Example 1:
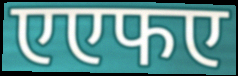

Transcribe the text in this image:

एएफए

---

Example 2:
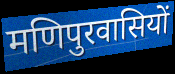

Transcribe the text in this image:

मणिपुरवासियों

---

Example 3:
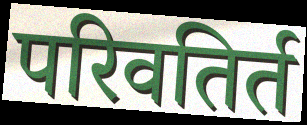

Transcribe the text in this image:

परिवतिर्त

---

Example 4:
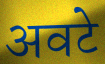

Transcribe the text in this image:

अवटे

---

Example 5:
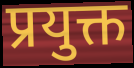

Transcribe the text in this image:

प्रयुक्त